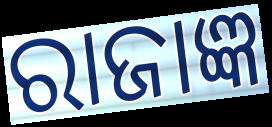
ରାଜାଜ୍ଞ